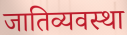
जातिव्यवस्था